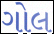
ગોલ